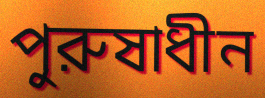
পুরুষাধীন